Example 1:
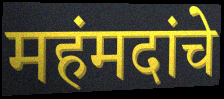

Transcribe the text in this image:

महंमदांचे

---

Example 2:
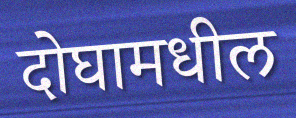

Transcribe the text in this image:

दोघामधील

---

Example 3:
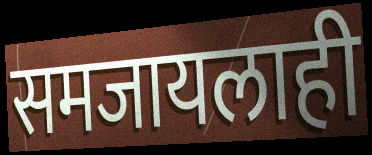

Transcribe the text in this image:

समजायलाही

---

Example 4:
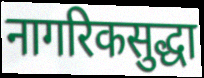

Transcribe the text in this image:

नागरिकसुद्धा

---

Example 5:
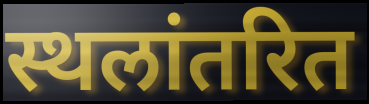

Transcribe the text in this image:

स्थलांतरित